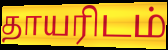
தாயரிடம்